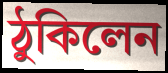
ঠুকিলেন